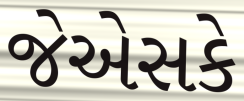
જેએસકે